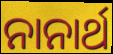
ନାନାର୍ଥ